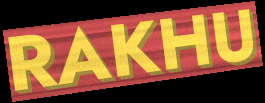
RAKHU